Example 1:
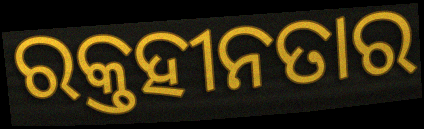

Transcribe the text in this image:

ରକ୍ତହୀନତାର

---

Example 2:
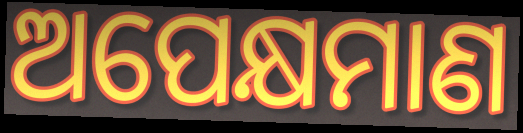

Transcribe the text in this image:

ଅପେକ୍ଷମାଣ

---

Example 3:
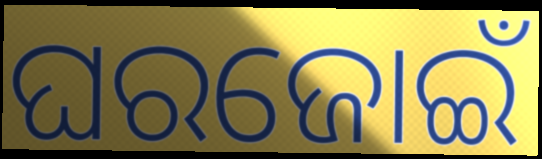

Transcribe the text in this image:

ଘରଜୋଇଁ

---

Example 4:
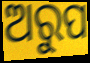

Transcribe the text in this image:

ଅରୁପ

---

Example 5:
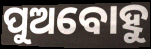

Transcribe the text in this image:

ପୁଅବୋହୁ